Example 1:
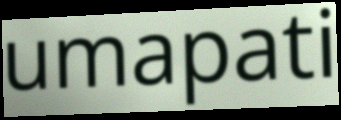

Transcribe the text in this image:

umapati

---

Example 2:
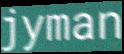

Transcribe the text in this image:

jyman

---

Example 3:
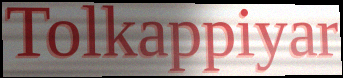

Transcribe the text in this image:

Tolkappiyar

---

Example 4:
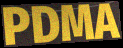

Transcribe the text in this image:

PDMA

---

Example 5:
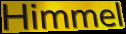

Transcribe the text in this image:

Himmel